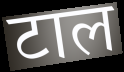
टाल